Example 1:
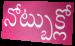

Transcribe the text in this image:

నోట్బుక్లో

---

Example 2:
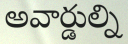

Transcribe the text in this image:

అవార్డుల్ని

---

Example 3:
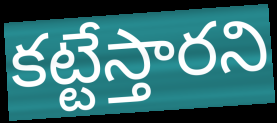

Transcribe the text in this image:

కట్టేస్తారని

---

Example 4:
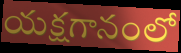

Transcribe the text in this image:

యక్షగానంలో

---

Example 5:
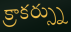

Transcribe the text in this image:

క్రాకర్స్ను